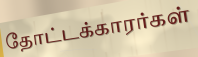
தோட்டக்காரர்கள்